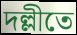
দল্লীতে